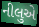
નીલુએ